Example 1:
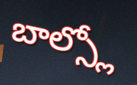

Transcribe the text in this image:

బాల్స్లో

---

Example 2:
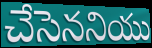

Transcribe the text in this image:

చేసెననియు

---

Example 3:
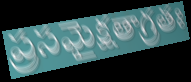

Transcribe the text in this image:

ప్రసమైక్షతాగ్రతః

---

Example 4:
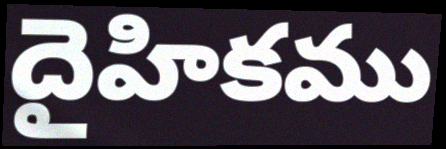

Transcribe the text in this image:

దైహికము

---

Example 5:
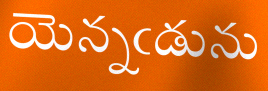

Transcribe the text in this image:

యెన్నఁడును